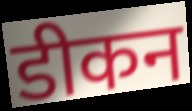
डीकन